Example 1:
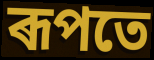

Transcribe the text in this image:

ৰূপতে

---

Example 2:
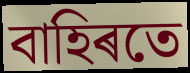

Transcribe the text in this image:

বাহিৰতে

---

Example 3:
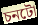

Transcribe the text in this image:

চনটো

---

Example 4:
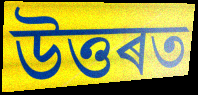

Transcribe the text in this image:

উত্তৰত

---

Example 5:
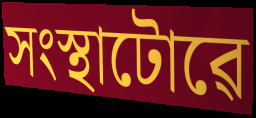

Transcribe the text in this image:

সংস্থাটোৱে